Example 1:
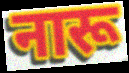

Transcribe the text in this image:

नारू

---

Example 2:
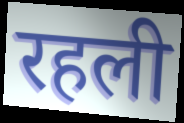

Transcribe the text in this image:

रहली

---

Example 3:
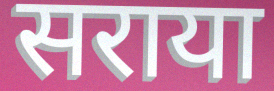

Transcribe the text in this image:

सराया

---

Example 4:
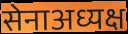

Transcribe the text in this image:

सेनाअध्यक्ष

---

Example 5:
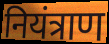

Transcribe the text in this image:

नियंत्राण